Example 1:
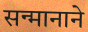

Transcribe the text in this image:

सन्मानाने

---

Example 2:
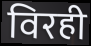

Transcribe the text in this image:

विरही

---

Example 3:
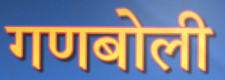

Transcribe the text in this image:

गणबोली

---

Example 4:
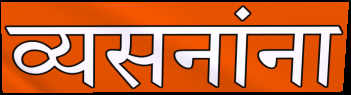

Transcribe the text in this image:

व्यसनांना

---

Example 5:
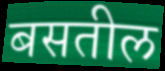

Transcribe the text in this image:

बसतील